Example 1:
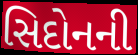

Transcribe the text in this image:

સિદોનની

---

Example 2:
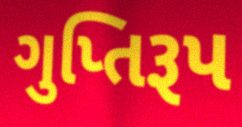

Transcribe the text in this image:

ગુપ્તિરૂપ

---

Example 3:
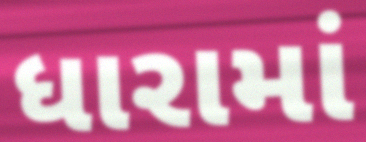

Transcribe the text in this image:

ધારામાં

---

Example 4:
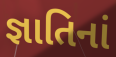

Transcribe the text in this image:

જ્ઞાતિનાં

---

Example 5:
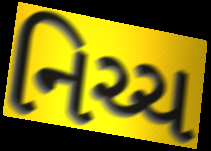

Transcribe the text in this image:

નિચ્ચ